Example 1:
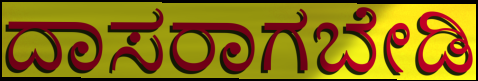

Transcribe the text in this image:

ದಾಸರಾಗಬೇಡಿ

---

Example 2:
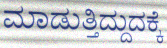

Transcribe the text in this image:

ಮಾಡುತ್ತಿದ್ದುದಕ್ಕೆ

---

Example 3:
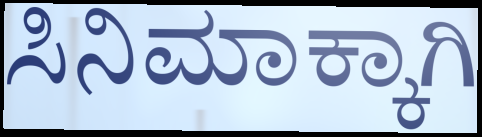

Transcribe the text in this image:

ಸಿನಿಮಾಕ್ಕಾಗಿ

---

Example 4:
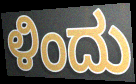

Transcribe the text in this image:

ಳಿಂದು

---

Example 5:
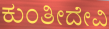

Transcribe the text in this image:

ಕುಂತೀದೇವಿ